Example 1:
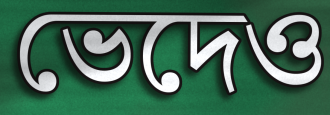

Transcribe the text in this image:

ভেদেও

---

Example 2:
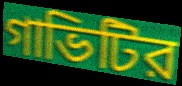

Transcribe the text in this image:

গাভিটির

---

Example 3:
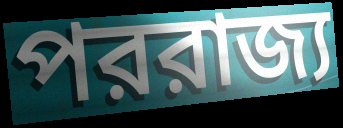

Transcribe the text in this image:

পররাজ্য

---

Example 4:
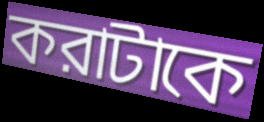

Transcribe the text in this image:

করাটাকে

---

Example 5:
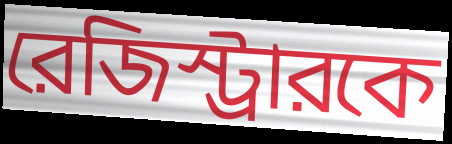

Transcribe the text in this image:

রেজিস্ট্রারকে